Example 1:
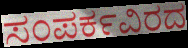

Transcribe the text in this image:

ಸಂಪರ್ಕವಿರದ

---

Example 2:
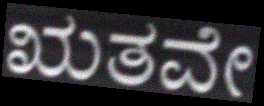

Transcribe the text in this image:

ಋತವೇ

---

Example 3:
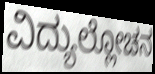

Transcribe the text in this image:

ವಿದ್ಯುಲ್ಲೋಚನ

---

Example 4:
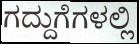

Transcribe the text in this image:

ಗದ್ದುಗೆಗಳಲ್ಲಿ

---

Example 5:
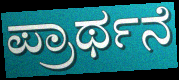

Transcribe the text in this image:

ಪ್ರಾರ್ಥನೆ